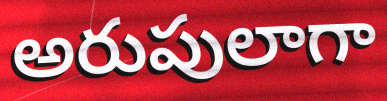
అరుపులాగా